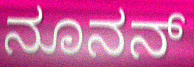
ನೂನನ್